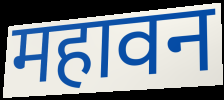
महावन